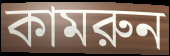
কামরুন